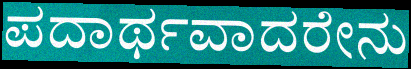
ಪದಾರ್ಥವಾದರೇನು